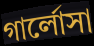
গার্লোসা